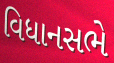
વિધાનસભે